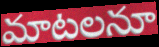
మాటలనూ